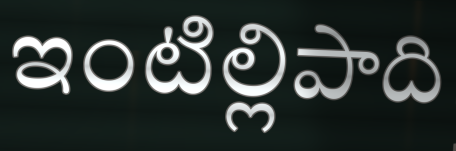
ఇంటిల్లిపాది